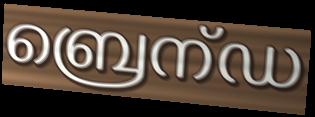
ബ്രെന്ഡ